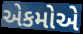
એકમોએ